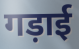
गड़ाई